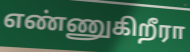
எண்ணுகிறீரா